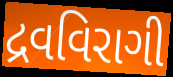
દ્રવવિરાગી